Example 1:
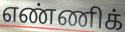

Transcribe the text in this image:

எண்ணிக்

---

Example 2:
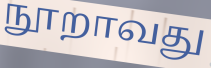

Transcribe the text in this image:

நூறாவது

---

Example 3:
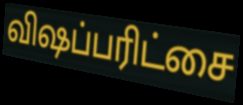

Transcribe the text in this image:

விஷப்பரிட்சை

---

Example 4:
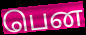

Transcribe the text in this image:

பென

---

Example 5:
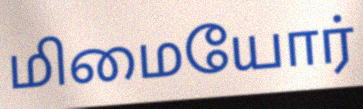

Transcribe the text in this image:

மிமையோர்